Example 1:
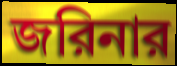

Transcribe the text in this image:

জরিনার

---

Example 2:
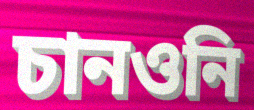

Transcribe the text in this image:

চানওনি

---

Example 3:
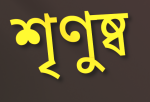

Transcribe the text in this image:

শৃণুষ্ব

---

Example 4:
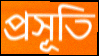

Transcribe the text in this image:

প্রসূতি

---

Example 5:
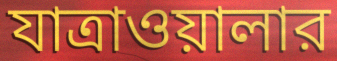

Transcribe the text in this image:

যাত্রাওয়ালার